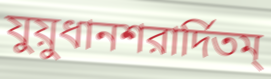
যুয়ুধানশরার্দিতম্